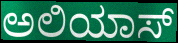
ಅಲಿಯಾಸ್